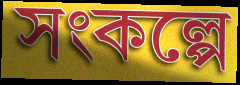
সংকল্পে